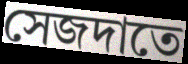
সেজদাতে